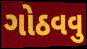
ગોઠવવુ